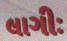
લાગીઃ